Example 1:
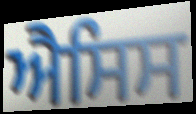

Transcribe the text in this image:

ਐਸਿਸ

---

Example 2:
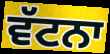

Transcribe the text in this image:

ਵੱਟਨਾ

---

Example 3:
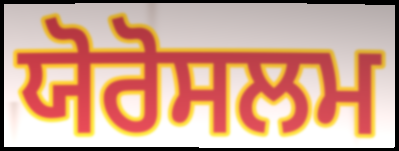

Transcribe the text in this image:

ਯੋਰੋਸਲਮ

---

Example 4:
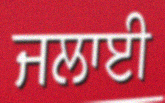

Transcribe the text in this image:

ਜਲਾਈ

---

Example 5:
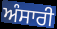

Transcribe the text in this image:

ਅੰਸਾਰੀ